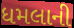
ધમલાની